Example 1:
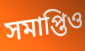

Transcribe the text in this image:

সমাপ্তিও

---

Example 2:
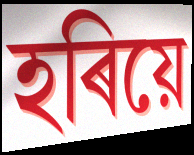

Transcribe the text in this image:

হৰিয়ে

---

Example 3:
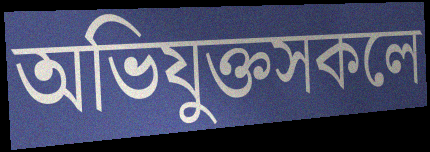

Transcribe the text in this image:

অভিযুক্তসকলে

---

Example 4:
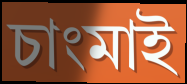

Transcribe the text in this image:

চাংমাই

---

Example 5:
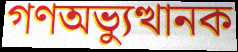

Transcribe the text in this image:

গণঅভ্যুত্থানক